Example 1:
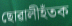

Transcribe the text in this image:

ছোৱালীহঁতক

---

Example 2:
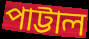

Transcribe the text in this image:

পাট্টাল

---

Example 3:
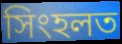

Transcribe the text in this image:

সিংহলত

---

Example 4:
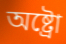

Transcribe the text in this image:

অষ্ট্ৰো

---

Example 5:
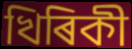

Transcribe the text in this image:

খিৰিকী